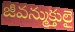
జీవన్ముక్తులై